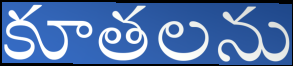
కూతలను